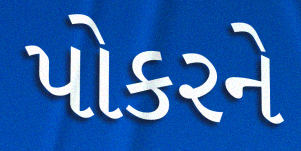
પોકરને